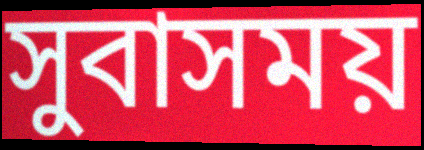
সুবাসময়